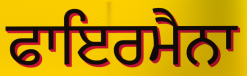
ਫਾਇਰਮੈਨਾ